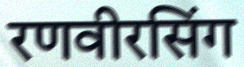
रणवीरसिंग